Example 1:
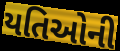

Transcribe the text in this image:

યતિઓની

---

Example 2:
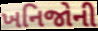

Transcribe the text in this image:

ખનિજોની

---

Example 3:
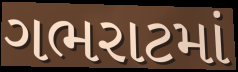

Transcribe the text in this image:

ગભરાટમાં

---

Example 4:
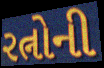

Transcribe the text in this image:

રત્નોની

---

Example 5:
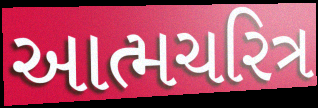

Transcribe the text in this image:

આત્મચરિત્ર